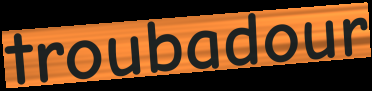
troubadour